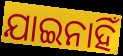
ଯାଇନାହିଁ